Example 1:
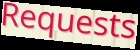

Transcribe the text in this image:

Requests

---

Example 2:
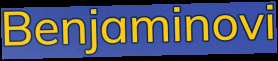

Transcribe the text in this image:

Benjaminovi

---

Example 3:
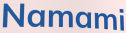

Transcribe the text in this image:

Namami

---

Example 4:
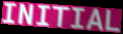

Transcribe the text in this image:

INITIAL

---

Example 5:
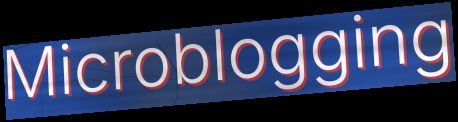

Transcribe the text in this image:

Microblogging